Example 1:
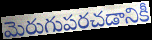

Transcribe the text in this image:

మెరుగుపరచడానికీ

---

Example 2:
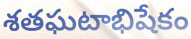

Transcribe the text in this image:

శతఘటాభిషేకం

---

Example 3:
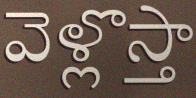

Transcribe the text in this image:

వెళ్లొస్తా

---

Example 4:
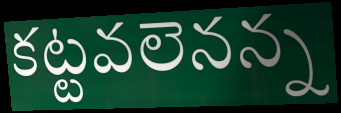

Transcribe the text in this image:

కట్టవలెనన్న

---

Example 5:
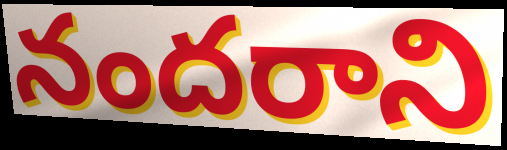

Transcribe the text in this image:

నందరాని